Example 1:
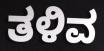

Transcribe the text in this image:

ತಳಿವ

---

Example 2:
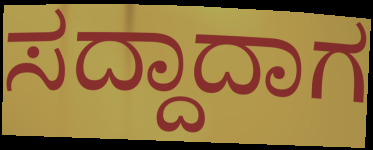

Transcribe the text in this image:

ಸದ್ದಾದಾಗ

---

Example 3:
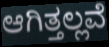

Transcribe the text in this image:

ಆಗಿತ್ತಲ್ಲವೆ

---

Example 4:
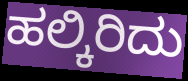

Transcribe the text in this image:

ಹಲ್ಕಿರಿದು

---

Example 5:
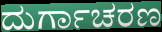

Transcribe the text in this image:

ದುರ್ಗಾಚರಣ